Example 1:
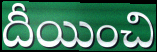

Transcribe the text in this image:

దీయించి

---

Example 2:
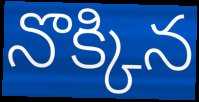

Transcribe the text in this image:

నొక్కిన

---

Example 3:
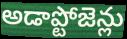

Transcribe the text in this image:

అడాప్టోజెన్లు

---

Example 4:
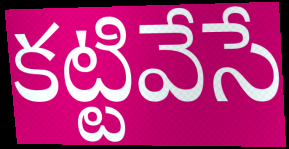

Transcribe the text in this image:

కట్టివేసే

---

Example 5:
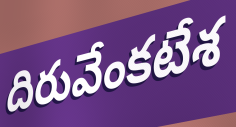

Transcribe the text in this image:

దిరువేంకటేశ